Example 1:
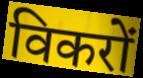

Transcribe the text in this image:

विकरों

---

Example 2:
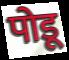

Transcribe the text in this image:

पोडू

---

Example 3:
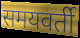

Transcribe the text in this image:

समयवर्ती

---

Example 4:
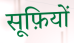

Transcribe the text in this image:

सूफ़ियों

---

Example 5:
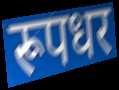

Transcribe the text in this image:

रूपधर